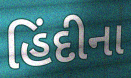
હિંદીના